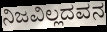
ನಿಜವಿಲ್ಲದವನ